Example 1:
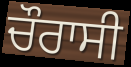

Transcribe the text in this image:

ਚੌਰਾਸੀ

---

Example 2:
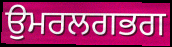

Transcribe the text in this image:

ਉੁਮਰਲਗਭਗ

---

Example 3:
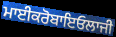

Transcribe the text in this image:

ਮਾਈਕਰੋਬਾਇਓਲਾਜੀ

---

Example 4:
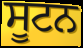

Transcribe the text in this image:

ਸੂਟਨ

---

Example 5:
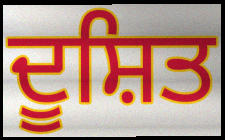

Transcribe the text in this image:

ਦੂਸ਼ਿਤ